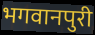
भगवानपुरी